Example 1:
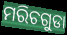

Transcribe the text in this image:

ମରିଚଗୁଡା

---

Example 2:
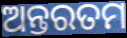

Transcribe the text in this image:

ଅନ୍ତରତମ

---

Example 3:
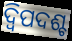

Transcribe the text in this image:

ଦ୍ବିପଦଶ୍ଚ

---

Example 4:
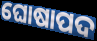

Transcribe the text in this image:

ଘୋଷାପଦ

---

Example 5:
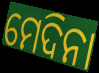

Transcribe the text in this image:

ମେଦିନା